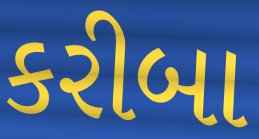
કરીબા